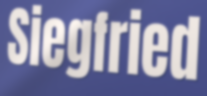
Siegfried